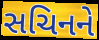
સચિનને